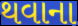
થવાના